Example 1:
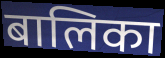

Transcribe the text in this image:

बालिका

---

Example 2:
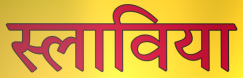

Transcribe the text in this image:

स्लाविया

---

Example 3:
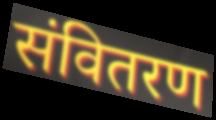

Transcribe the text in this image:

संवितरण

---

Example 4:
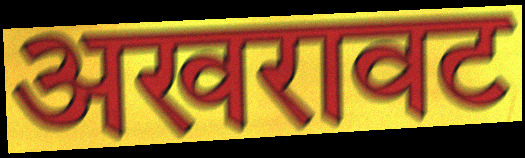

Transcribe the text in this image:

अखरावट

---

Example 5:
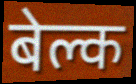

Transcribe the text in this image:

बेल्क